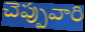
చెప్పువారి